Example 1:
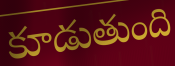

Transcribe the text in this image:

కూడుతుంది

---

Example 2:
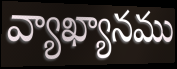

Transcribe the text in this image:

వ్యాఖ్యానము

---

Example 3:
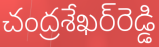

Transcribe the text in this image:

చంద్రశేఖర్‌రెడ్డి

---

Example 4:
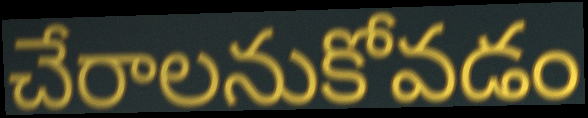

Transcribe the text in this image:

చేరాలనుకోవడం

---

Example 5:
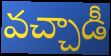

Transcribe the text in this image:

వచ్చాడీ